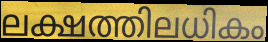
ലക്ഷത്തിലധികം